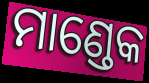
ମାଣ୍ଡେକ